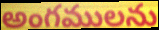
అంగములను